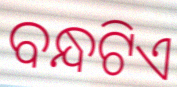
ବନ୍ଧଟିଏ